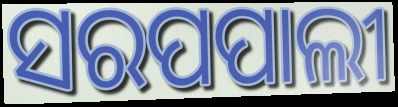
ସରପପାଲୀ